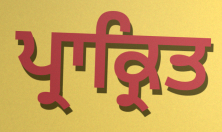
ਪ੍ਰਾਕ੍ਰਿਤ